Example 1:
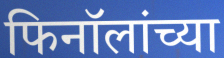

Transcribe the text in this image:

फिनॉलांच्या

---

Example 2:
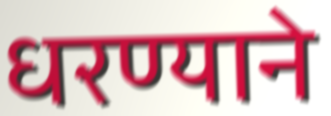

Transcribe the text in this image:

धरण्याने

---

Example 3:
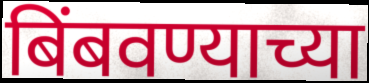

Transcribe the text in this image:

बिंबवण्याच्या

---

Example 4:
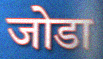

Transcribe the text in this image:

जोडा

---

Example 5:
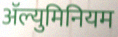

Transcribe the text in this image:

ॲल्युमिनियम